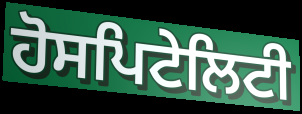
ਹੋਸਪਿਟੇਲਿਟੀ